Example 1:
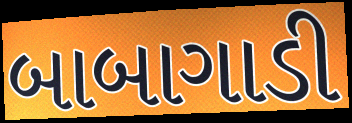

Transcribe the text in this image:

બાબાગાડી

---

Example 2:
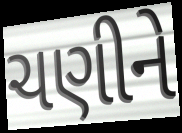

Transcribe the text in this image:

ચણીને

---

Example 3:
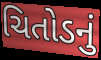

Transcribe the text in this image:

ચિતોડનું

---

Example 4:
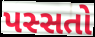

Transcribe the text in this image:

પસ્સતો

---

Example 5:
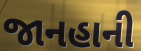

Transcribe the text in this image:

જાનહાની